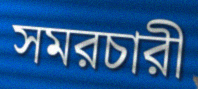
সমরচারী